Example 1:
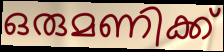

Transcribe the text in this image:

ഒരുമണിക്ക്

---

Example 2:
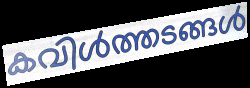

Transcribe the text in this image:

കവിൾത്തടങ്ങൾ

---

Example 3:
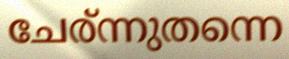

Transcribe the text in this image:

ചേര്ന്നുതന്നെ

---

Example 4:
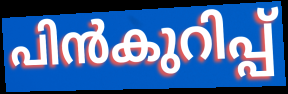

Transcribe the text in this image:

പിൻകുറിപ്പ്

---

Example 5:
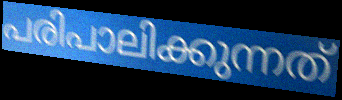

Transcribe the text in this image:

പരിപാലിക്കുന്നത്